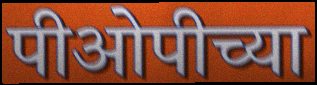
पीओपीच्या